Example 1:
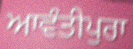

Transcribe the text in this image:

ਆਵੰਤੀਪੁਰਾ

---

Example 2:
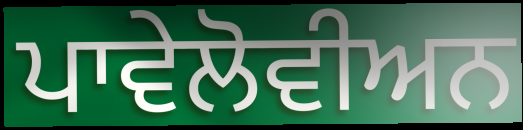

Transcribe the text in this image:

ਪਾਵੇਲੋਵੀਅਨ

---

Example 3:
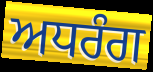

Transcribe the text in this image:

ਅਧਰੰਗ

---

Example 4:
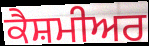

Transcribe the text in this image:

ਕੈਸ਼ਮੀਅਰ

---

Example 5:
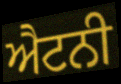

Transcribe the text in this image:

ਐਟਨੀ